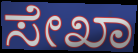
ಸೇಖಾ